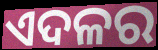
ଏଦଳର